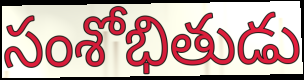
సంశోభితుడు